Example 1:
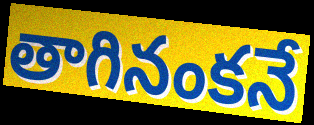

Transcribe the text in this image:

తాగినంకనే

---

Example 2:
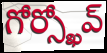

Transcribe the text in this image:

గోర్స్ఖోవ్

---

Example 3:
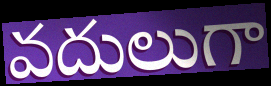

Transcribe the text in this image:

వదులుగా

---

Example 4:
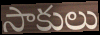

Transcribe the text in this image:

సాకులు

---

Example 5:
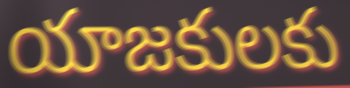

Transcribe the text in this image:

యాజకులకు